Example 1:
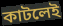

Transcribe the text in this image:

কাটলেই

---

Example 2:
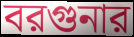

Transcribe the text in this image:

বরগুনার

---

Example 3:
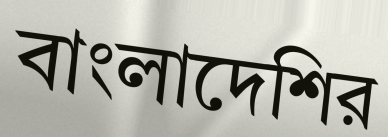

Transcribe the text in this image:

বাংলাদেশির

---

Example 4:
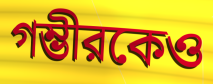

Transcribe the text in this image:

গম্ভীরকেও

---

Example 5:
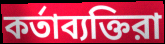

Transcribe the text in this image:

কর্তাব্যক্তিরা